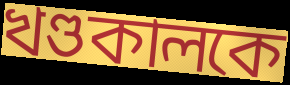
খণ্ডকালকে